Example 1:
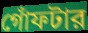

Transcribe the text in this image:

গোঁফটার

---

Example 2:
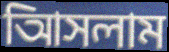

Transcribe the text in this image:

আিসলাম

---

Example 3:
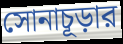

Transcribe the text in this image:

সোনাচূড়ার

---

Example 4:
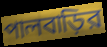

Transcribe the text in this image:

পালবাড়ির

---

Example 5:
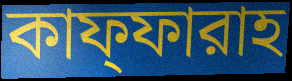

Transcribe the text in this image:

কাফ্ফারাহ